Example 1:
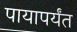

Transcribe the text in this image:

पायापर्यंत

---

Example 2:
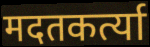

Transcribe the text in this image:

मदतकर्त्या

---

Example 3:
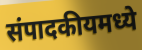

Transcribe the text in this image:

संपादकीयमध्ये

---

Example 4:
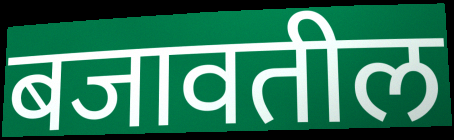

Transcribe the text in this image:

बजावतील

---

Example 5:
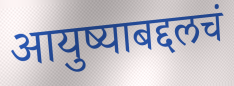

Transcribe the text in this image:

आयुष्याबद्दलचं